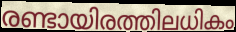
രണ്ടായിരത്തിലധികം